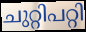
ചുറ്റിപറ്റി